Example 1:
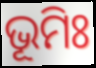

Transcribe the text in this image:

ଭୂମିଃ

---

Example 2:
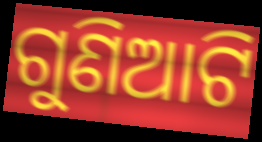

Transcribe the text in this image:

ଗୁଣିଆଟି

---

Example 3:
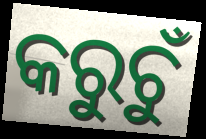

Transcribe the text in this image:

କରୁଚୁଁ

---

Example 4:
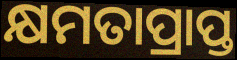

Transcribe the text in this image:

କ୍ଷମତାପ୍ରାପ୍ତ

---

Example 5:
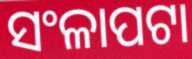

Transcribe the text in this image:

ସଂଳାପଟା